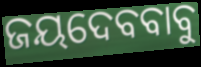
ଜୟଦେବବାବୁ